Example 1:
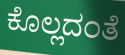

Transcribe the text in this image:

ಕೊಲ್ಲದಂತೆ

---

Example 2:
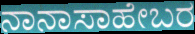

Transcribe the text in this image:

ನಾನಾಸಾಹೇಬರ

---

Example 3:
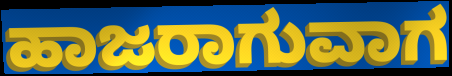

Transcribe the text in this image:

ಹಾಜರಾಗುವಾಗ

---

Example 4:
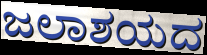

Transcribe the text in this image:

ಜಲಾಶಯದ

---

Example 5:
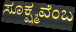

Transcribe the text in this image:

ಸೂಕ್ಷ್ಮವೆಂಬ